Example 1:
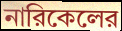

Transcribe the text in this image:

নারিকেলের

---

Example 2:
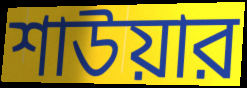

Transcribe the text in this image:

শাউয়ার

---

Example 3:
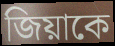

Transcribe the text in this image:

জিয়াকে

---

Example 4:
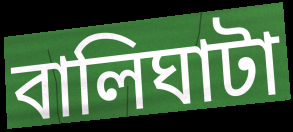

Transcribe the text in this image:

বালিঘাটা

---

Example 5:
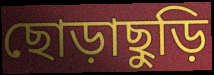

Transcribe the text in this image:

ছোড়াছুড়ি